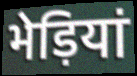
भेड़ियां